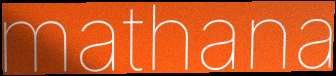
mathana